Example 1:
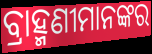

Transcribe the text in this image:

ବ୍ରାହ୍ମଣୀମାନଙ୍କର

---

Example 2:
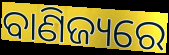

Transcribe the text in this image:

ବାଣିଜ୍ୟରେ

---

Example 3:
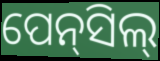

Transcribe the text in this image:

ପେନ୍‌ସିଲ୍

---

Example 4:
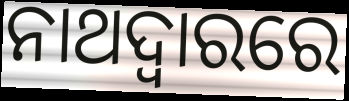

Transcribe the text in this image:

ନାଥଦ୍ୱାରରେ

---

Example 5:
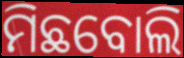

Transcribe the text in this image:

ମିଛବୋଲି